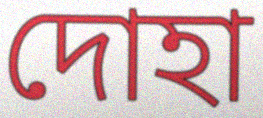
দোহা